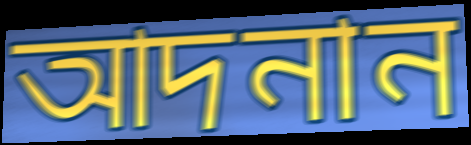
আদনান